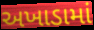
અખાડામાં